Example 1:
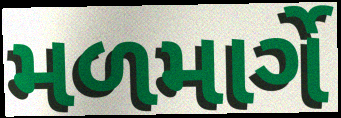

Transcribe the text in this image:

મળમાર્ગે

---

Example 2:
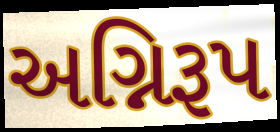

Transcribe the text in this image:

અગ્નિરૂપ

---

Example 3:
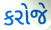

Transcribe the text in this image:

કરોજે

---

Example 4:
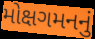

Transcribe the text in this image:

મોક્ષગમનનું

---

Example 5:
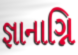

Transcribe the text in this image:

જ્ઞાનાગ્નિ